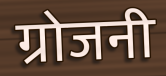
ग्रोजनी